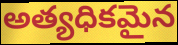
అత్యధికమైన